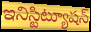
ఇనిస్టిట్యూషన్